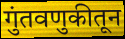
गुंतवणुकीतून